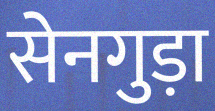
सेनगुड़ा